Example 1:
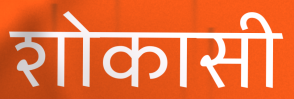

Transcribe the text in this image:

शोकासी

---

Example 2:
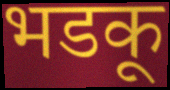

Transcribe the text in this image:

भडकू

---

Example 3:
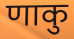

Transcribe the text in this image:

णाकु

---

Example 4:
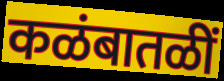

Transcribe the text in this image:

कळंबातळीं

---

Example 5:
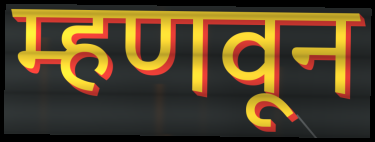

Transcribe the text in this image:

म्हणवून